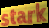
stark